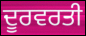
ਦੂਰਵਰਤੀ